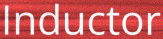
Inductor